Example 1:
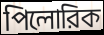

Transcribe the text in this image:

পিলোরিক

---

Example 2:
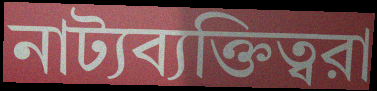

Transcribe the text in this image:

নাট্যব্যক্তিত্বরা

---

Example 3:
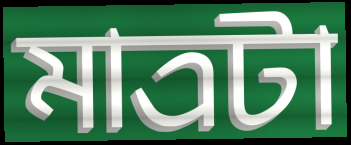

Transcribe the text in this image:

মাত্রটা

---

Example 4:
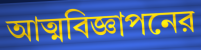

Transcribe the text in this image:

আত্মবিজ্ঞাপনের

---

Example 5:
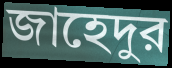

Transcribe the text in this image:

জাহেদুর